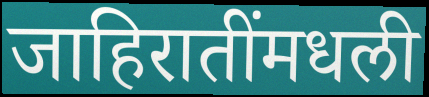
जाहिरातींमधली